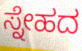
ಸ್ನೇಹದ